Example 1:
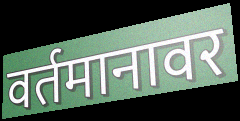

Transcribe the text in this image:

वर्तमानावर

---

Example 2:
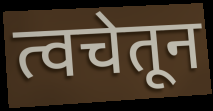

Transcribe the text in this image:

त्वचेतून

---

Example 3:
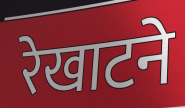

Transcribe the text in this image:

रेखाटने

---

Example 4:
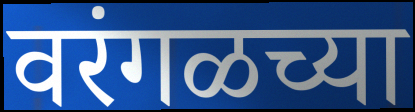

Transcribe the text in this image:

वरंगळच्या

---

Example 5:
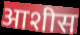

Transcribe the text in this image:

आशीस